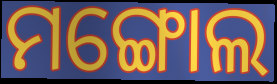
ମଙ୍ଗୋଲ